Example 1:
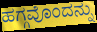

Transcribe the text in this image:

ಹಗ್ಗವೊಂದನ್ನು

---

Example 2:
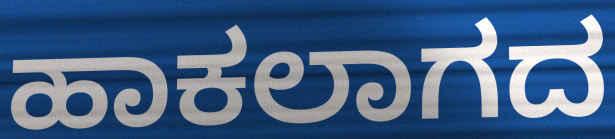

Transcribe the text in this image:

ಹಾಕಲಾಗದ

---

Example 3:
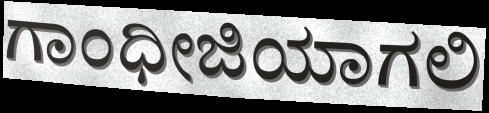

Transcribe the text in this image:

ಗಾಂಧೀಜಿಯಾಗಲಿ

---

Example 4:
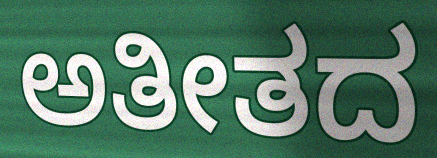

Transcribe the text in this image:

ಅತೀತದ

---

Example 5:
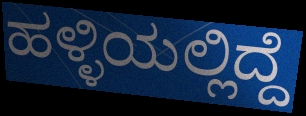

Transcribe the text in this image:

ಹಳ್ಳಿಯಲ್ಲಿದ್ದೆ